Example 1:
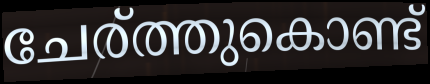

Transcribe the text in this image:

ചേര്ത്തുകൊണ്ട്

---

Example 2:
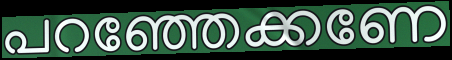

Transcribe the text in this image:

പറഞ്ഞേക്കണേ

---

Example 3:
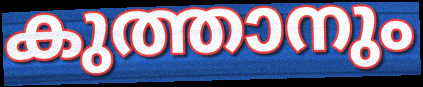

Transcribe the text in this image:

കുത്താനും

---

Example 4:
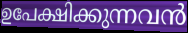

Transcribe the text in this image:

ഉപേക്ഷിക്കുന്നവൻ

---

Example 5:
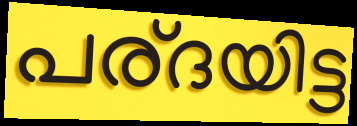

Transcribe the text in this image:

പര്ദയിട്ട